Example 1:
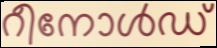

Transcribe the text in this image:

റീനോൾഡ്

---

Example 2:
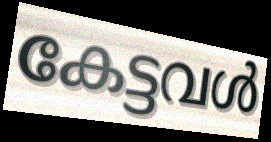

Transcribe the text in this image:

കേട്ടവൾ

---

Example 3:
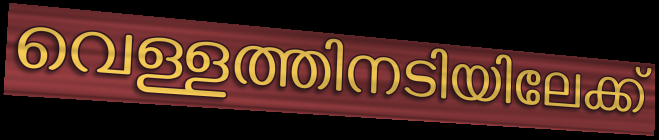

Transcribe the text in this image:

വെള്ളത്തിനടിയിലേക്ക്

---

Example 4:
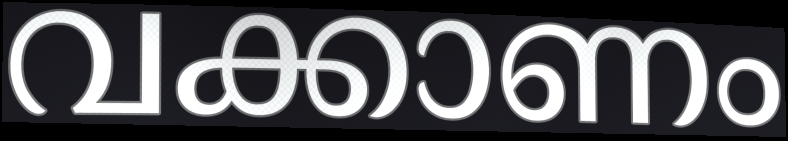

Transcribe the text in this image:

വക്കാണം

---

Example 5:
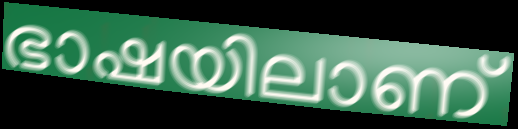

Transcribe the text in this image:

ഭാഷയിലാണ്